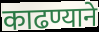
काढण्याने